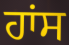
ਹਾਂਸ